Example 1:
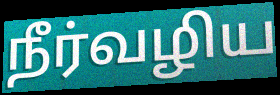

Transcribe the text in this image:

நீர்வழிய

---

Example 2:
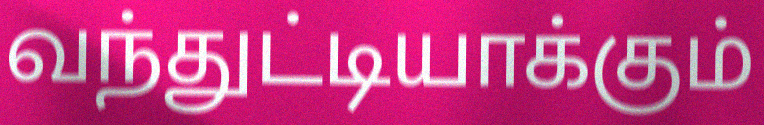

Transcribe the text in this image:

வந்துட்டியாக்கும்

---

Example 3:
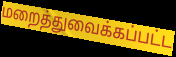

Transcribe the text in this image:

மறைத்துவைக்கப்பட்ட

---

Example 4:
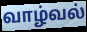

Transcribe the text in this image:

வாழ்வல்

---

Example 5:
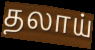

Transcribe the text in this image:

தலாய்